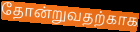
தோன்றுவதற்காக